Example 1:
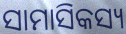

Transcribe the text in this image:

ସାମାସିକସ୍ୟ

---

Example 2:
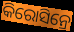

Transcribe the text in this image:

କିରୋସିନ୍ରେ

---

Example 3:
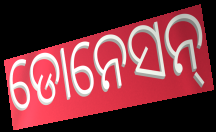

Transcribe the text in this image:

ଡୋନେସନ୍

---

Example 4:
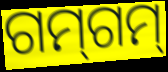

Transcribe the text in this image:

ଗମ୍‍ଗମ୍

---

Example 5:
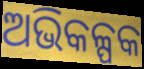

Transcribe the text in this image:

ଅଭିକଳ୍ପକ